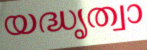
യദ്ധൃത്വാ